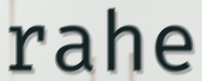
rahe